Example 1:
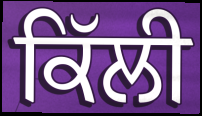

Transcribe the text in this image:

ਕਿੱਲੀ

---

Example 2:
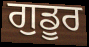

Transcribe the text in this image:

ਗੁਡੂਰ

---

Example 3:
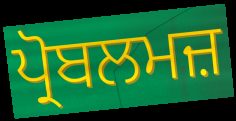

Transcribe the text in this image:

ਪ੍ਰੋਬਲਮਜ਼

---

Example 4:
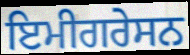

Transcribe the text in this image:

ਇਮੀਗਰੇਸਨ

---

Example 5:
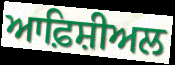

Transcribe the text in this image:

ਆਫ਼ਿਸ਼ੀਅਲ